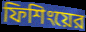
ফিশিংয়ের